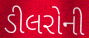
ડીલરોની